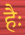
हैः